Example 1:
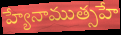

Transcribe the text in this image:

హ్యేనాముత్సహే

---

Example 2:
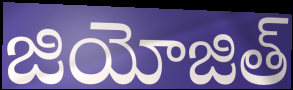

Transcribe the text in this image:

జియోజిత్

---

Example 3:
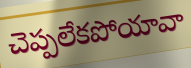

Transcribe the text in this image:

చెప్పలేకపోయావా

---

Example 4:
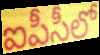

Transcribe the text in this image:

ఐపీసీలో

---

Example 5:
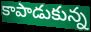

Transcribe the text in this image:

కాపాడుకున్న